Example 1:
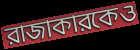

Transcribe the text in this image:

রাজাকারকেও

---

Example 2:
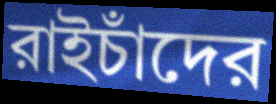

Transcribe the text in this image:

রাইচাঁদের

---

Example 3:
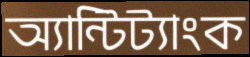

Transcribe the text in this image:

অ্যান্টিট্যাংক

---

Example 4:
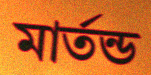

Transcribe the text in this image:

মার্তন্ড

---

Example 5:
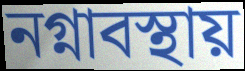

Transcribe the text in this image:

নগ্নাবস্থায়